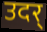
उदर्